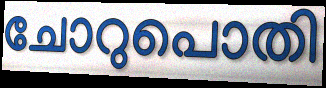
ചോറുപൊതി